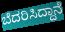
ಬೆದರಿಸಿದ್ದಾನೆ